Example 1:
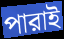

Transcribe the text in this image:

পারাই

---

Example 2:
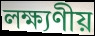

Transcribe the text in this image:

লক্ষ্যণীয়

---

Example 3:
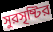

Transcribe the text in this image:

সুরসৃষ্টির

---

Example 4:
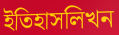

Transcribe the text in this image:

ইতিহাসলিখন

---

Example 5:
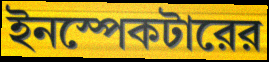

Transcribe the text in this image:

ইনস্পেকটারের